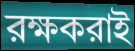
রক্ষকরাই